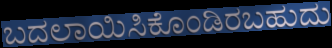
ಬದಲಾಯಿಸಿಕೊಂಡಿರಬಹುದು